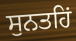
ਸੁਨਤਹਿਂ